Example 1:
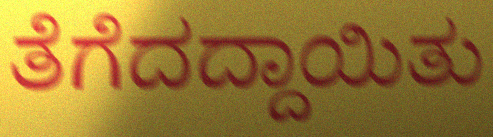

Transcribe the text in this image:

ತೆಗೆದದ್ದಾಯಿತು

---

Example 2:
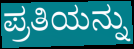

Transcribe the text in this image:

ಪ್ರತಿಯನ್ನು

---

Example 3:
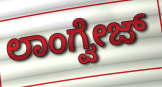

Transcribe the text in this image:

ಲಾಂಗ್ವೇಜ್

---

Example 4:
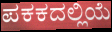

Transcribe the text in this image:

ಪಕಕದಲ್ಲಿಯೆ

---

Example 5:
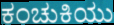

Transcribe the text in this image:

ಕಂಚುಕಿಯು